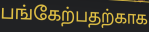
பங்கேற்பதற்காக